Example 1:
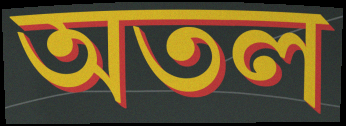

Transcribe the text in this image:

অতল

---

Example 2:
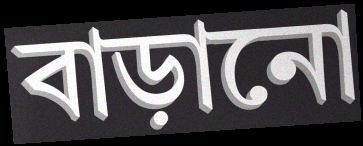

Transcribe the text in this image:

বাড়ানো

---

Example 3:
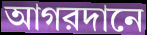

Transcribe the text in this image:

আগরদানে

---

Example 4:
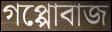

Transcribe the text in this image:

গপ্পোবাজ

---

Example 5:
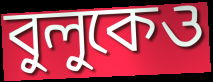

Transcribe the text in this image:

বুলুকেও